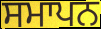
ਸਮਾਪਨ